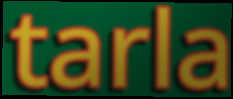
tarla